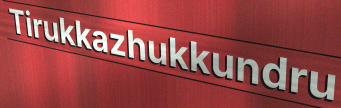
Tirukkazhukkundru